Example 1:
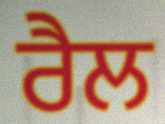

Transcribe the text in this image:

ਰੈਲ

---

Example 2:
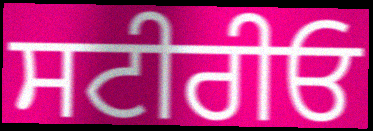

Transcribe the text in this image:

ਸਟੀਰੀਓ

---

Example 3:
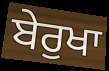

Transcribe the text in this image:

ਬੇਰੁਖਾ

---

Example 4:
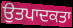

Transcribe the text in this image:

ਉਤਪਾਦਕਤਾ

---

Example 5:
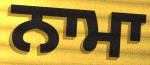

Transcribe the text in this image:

ਨਾਮਾ